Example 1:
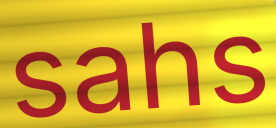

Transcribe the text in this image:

sahs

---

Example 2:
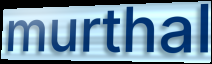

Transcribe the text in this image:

murthal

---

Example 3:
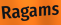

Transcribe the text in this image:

Ragams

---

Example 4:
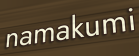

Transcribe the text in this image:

namakumi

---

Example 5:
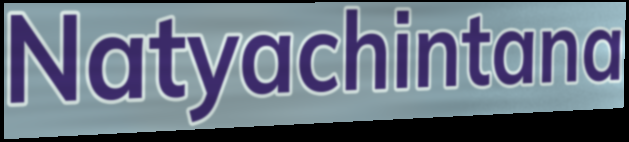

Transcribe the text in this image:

Natyachintana